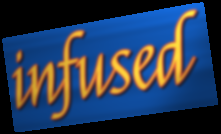
infused